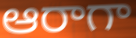
ఆరాగా